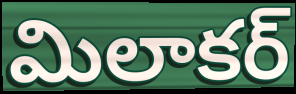
మిలాకర్